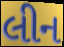
લીન